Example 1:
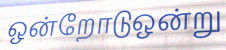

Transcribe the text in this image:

ஒன்றோடுஒன்று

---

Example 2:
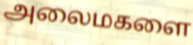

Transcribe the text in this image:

அலைமகளை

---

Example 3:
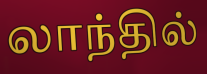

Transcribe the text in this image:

லாந்தில்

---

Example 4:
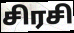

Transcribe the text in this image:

சிரசி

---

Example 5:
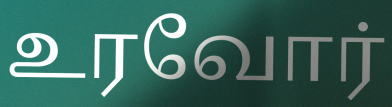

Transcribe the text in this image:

உரவோர்